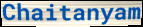
Chaitanyam